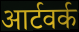
आर्टवर्क